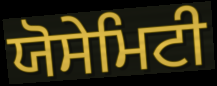
ਯੋਸੇਮਿਟੀ